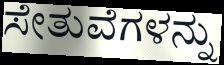
ಸೇತುವೆಗಳನ್ನು